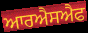
ਆਰਐਸਐਫ